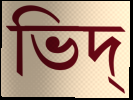
ভিদ্